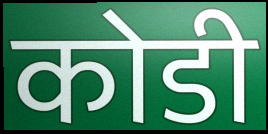
कोडी